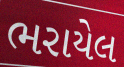
ભરાયેલ